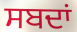
ਸਬਦਾਂ